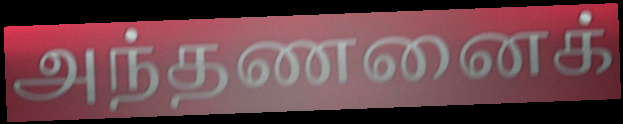
அந்தணனைக்